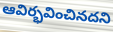
ఆవిర్భవించినదని